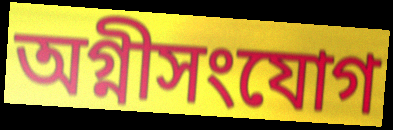
অগ্নীসংযোগ